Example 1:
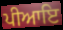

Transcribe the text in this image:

ਪੀਆਇ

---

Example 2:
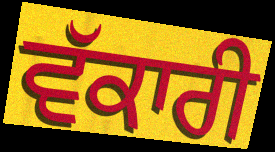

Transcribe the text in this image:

ਵੱਕਾਰੀ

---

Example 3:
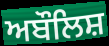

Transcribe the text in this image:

ਅਬੌਲਿਸ਼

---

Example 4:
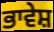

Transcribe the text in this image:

ਭਾਵੇਸ਼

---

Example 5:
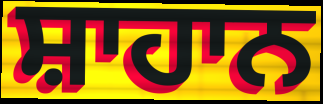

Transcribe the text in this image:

ਸ਼ਾਹਾਨ